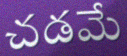
చడమే